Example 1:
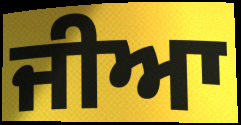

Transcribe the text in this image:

ਜੀਆ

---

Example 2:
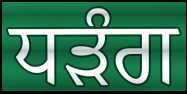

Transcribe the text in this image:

ਧੜੰਗ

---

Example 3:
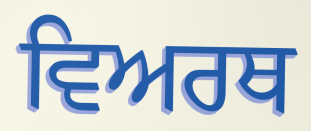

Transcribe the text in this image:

ਵਿਅਰਥ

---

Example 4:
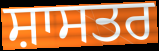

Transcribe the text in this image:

ਸ਼ਾਸਤਰ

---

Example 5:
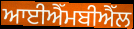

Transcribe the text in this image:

ਆਈਐੱਮਬੀਐੱਲ